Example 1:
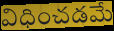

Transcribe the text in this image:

విధించడమే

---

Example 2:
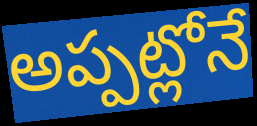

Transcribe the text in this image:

అప్పట్లోనే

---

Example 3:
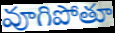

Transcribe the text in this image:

వూగిపోతూ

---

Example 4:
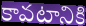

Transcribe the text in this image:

కావటానికి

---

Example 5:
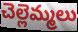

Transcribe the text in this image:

చెల్లెమ్మలు